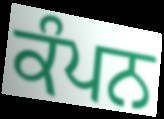
ਕੰਪਨ